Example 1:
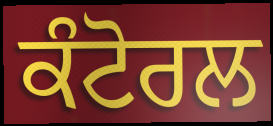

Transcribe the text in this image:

ਕੰਟੋਰਲ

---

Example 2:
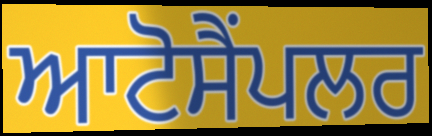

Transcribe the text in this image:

ਆਟੋਸੈਂਪਲਰ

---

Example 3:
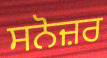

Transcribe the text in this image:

ਸਨੋਜ਼ਰ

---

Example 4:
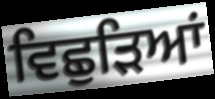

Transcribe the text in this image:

ਵਿਛੁੜਿਆਂ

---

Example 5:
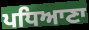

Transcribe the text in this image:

ਪਧਿਆਣਾ